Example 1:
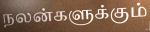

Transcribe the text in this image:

நலன்களுக்கும்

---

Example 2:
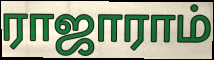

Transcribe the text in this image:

ராஜாராம்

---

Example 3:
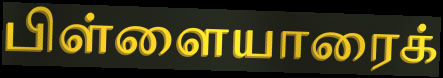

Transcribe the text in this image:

பிள்ளையாரைக்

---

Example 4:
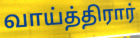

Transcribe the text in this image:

வாய்த்திரார்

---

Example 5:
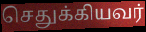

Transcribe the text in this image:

செதுக்கியவர்